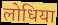
लोधिया